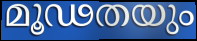
മൂഢതയും